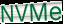
NVMe